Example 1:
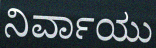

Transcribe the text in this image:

ನಿರ್ವಾಯು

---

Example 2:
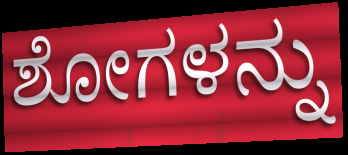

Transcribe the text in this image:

ಶೋಗಳನ್ನು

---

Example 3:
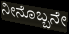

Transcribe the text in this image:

ನೀನೊಬ್ಬನೇ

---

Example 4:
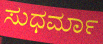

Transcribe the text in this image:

ಸುಧರ್ಮಾ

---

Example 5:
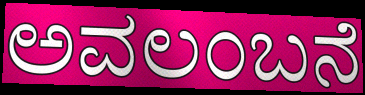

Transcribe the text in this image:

ಅವಲಂಬನೆ